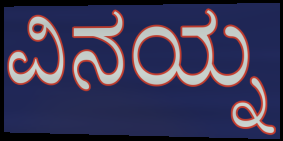
ವಿನಯ್ನ